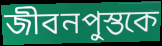
জীবনপুস্তকে